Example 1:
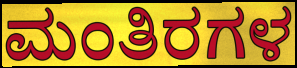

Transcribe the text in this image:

ಮಂತಿರಗಳ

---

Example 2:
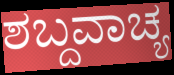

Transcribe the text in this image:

ಶಬ್ದವಾಚ್ಯ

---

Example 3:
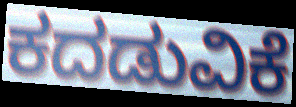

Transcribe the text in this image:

ಕದಡುವಿಕೆ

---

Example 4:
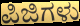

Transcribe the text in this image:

ಪಿಜಿಗಳು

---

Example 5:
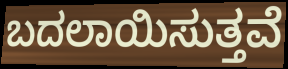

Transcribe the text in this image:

ಬದಲಾಯಿಸುತ್ತವೆ